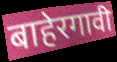
बाहेरगावी